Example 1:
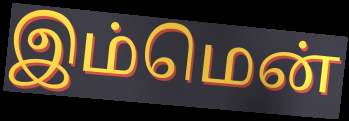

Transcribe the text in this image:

இம்மென்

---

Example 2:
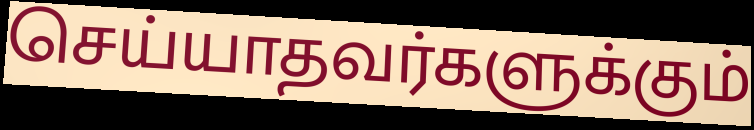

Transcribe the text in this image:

செய்யாதவர்களுக்கும்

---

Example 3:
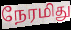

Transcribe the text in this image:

நேரமிது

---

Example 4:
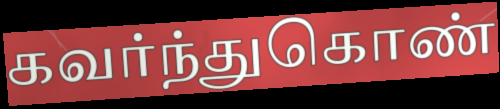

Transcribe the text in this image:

கவர்ந்துகொண்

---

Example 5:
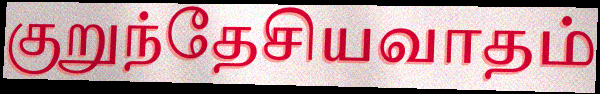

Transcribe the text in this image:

குறுந்தேசியவாதம்